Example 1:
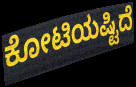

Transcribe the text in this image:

ಕೋಟಿಯಷ್ಟಿದೆ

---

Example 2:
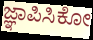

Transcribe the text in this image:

ಜ್ಞಾಪಿಸಿಕೋ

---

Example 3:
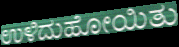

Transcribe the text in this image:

ಉಳಿದುಹೋಯಿತು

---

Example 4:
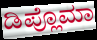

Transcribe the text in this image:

ಡಿಪ್ಲೊಮಾ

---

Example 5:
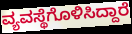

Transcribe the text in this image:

ವ್ಯವಸ್ಥೆಗೊಳಿಸಿದ್ದಾರೆ